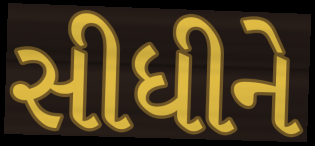
સીધીને